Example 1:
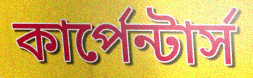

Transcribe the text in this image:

কার্পেন্টার্স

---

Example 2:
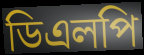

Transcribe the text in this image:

ডিএলপি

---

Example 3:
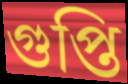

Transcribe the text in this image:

গুপ্তি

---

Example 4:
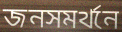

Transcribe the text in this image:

জনসমর্থনে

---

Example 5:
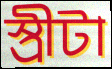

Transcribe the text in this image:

স্ত্রীটা